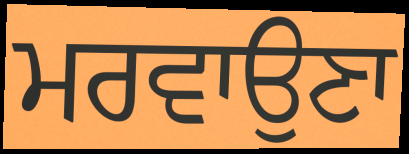
ਮਰਵਾਉਣਾ